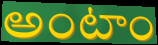
అంటాం